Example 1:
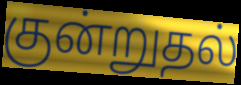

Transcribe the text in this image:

குன்றுதல்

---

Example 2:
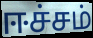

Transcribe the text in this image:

ஈச்சம்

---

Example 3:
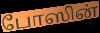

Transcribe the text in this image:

போஸின்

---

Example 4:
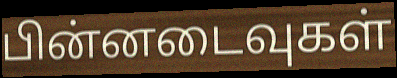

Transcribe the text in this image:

பின்னடைவுகள்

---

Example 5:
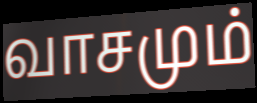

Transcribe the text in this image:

வாசமும்